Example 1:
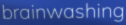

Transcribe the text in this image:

brainwashing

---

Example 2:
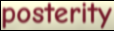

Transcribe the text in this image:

posterity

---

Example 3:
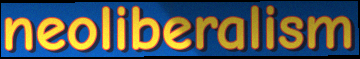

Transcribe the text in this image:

neoliberalism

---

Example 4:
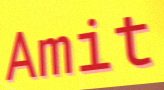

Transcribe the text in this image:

Amit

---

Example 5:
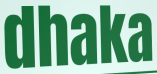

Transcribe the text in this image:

dhaka